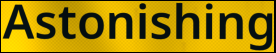
Astonishing